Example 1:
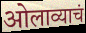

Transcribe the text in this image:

ओलाव्याचं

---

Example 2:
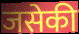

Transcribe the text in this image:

जसेकी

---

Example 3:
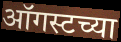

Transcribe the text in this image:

ऑगस्टच्या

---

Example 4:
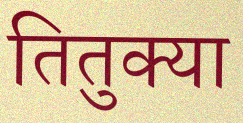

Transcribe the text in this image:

तितुक्या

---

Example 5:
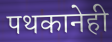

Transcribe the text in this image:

पथकानेही